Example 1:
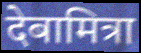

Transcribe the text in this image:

देबामित्रा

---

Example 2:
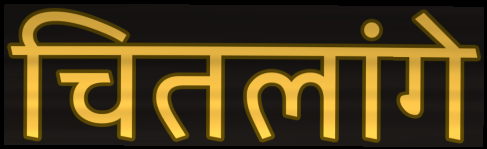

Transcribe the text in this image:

चितलांगे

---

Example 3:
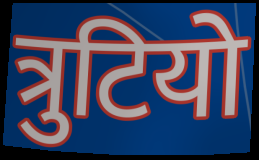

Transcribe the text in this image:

त्रुटियो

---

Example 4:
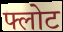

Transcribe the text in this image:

फ्लोट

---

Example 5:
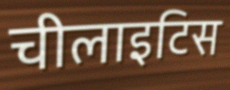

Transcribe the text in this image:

चीलाइटिस